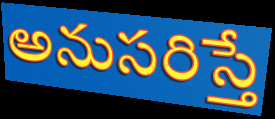
అనుసరిస్తే